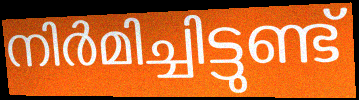
നിർമിച്ചിട്ടുണ്ട്